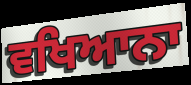
ਵਖਿਆਨਾ